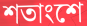
শতাংশে